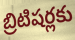
బ్రిటిషర్లకు